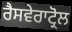
ਰੈਸਵੇਰਾਟ੍ਰੋਲ